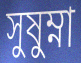
সুষুম্না